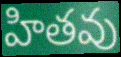
హితవు